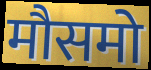
मौसमो